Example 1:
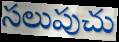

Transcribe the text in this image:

సలుపుచు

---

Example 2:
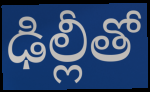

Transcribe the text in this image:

ఢిల్లీతో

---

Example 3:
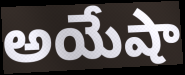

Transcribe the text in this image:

అయేషా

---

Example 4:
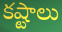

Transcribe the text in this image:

కష్టాలు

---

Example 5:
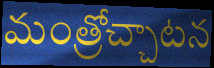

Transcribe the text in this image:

మంత్రోచ్చాటన